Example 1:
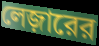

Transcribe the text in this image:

লেজ়ারের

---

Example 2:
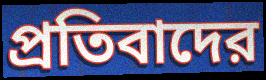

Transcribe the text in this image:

প্রতিবাদের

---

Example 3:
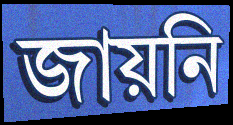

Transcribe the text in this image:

জায়নি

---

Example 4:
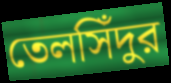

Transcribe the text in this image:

তেলসিঁদুর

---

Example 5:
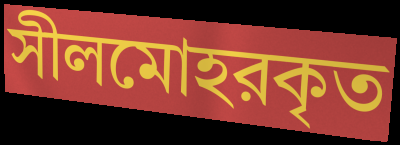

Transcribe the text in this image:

সীলমোহরকৃত